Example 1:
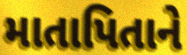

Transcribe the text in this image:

માતાપિતાને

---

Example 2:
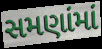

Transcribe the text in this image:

સમણાંમાં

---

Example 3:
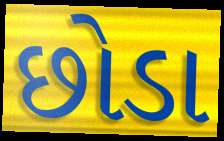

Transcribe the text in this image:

છોડા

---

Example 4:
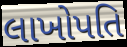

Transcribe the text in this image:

લાખોપતિ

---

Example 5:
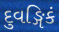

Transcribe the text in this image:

દુવઙ્ગિકં